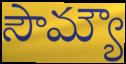
సౌమ్యౌ